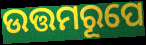
ଉତ୍ତମରୂପେ